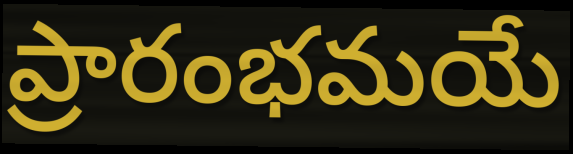
ప్రారంభమయే